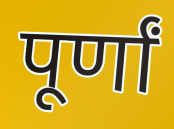
पूर्णां